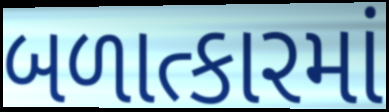
બળાત્કારમાં